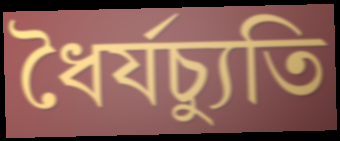
ধৈর্যচ্যুতি